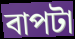
বাপটা